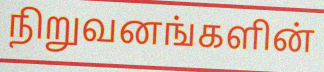
நிறுவனங்களின்